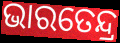
ଭାରତେନ୍ଦ୍ର